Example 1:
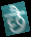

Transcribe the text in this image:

छै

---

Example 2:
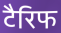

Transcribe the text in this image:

टैरिफ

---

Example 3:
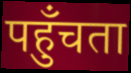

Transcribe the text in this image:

पहुँचता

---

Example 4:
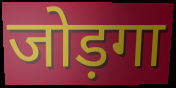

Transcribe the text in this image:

जोड़गा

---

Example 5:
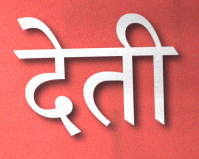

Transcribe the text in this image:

देती